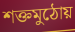
শক্তমুঠোয়